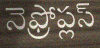
నెఫ్రోప్లస్